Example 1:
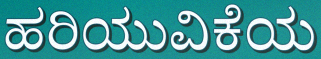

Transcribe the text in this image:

ಹರಿಯುವಿಕೆಯ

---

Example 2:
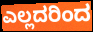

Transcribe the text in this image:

ಎಲ್ಲದರಿಂದ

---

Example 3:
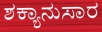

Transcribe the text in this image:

ಶಕ್ಯಾನುಸಾರ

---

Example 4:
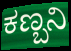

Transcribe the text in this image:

ಕಣ್ಬನಿ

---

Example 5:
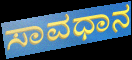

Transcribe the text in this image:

ಸಾವಧಾನ